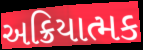
અક્રિયાત્મક